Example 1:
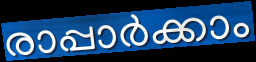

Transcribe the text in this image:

രാപ്പാർക്കാം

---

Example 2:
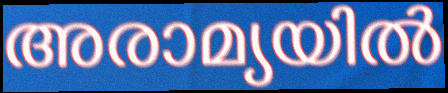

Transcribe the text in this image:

അരാമ്യയിൽ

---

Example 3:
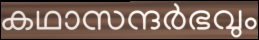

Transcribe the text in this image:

കഥാസന്ദർഭവും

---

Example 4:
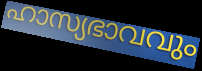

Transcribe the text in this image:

ഹാസ്യഭാവവും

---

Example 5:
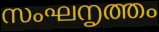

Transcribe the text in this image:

സംഘനൃത്തം